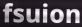
fsuion